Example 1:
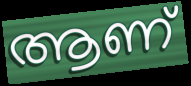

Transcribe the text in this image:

ആണ്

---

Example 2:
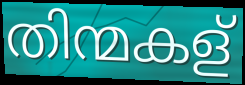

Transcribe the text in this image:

തിന്മകള്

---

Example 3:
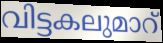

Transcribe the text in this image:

വിട്ടകലുമാറ്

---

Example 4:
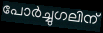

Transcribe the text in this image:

പോർച്ചുഗലിന്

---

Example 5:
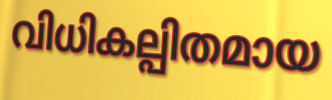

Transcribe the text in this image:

വിധികല്പിതമായ